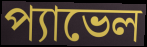
প্যাভেল